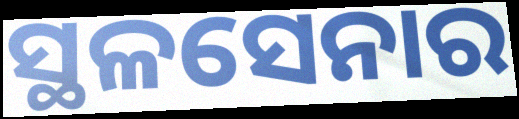
ସ୍ଥଳସେନାର